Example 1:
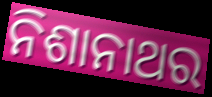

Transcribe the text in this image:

ନିଶାନାଥର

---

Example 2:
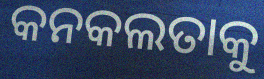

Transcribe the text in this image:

କନକଲତାକୁ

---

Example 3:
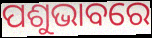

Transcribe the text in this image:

ପଶୁଭାବରେ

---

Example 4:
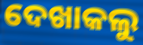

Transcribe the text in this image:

ଦେଖାକଲୁ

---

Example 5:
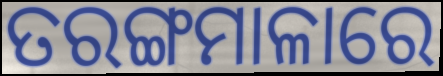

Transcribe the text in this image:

ତରଙ୍ଗମାଳାରେ